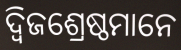
ଦ୍ୱିଜଶ୍ରେଷ୍ଠମାନେ